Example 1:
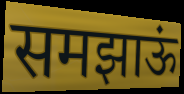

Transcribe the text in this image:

समझाऊं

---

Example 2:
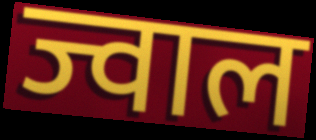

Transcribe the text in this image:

ज्वाल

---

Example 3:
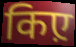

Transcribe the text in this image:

किए़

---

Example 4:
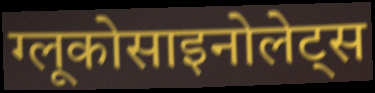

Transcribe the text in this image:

ग्लूकोसाइनोलेट्स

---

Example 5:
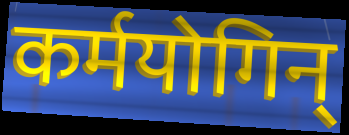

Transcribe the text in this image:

कर्मयोगिन्